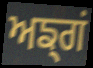
ਅਙ੍ਗਂ